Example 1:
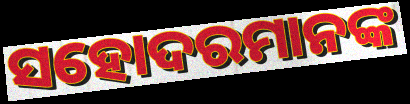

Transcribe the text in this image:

ସହୋଦରମାନଙ୍କ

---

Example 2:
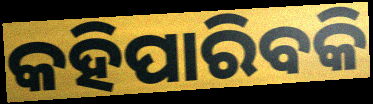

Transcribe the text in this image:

କହିପାରିବକି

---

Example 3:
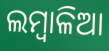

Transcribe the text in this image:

ଲମ୍ବାଳିଆ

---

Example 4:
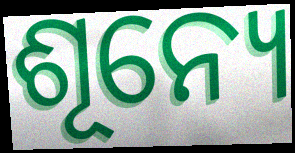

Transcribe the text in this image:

ଶୂନ୍ୟେ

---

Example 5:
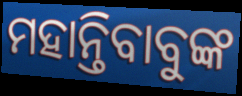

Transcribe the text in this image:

ମହାନ୍ତିବାବୁଙ୍କ